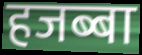
हजब्बा